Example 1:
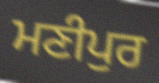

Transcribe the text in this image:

ਮਣੀਪੁਰ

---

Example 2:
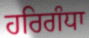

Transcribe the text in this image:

ਹਰਿਗੰਧਾ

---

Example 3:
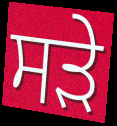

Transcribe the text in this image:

ਸੜੇ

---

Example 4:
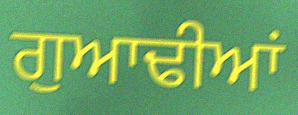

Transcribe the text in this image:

ਗੁਆਢੀਆਂ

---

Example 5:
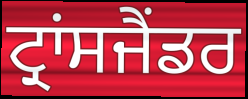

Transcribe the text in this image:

ਟ੍ਰਾਂਸਜੈਂਡਰ